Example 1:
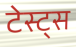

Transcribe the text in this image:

टेस्ट्स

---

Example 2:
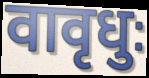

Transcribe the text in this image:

वावृधुः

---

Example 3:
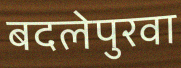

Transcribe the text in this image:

बदलेपुरवा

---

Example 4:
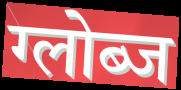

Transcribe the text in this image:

ग्लोब्ज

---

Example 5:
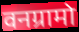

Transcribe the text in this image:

वनग्रामो